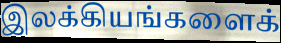
இலக்கியங்களைக்